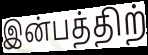
இன்பத்திற்